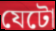
যেটো